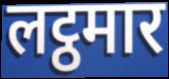
लट्ठमार